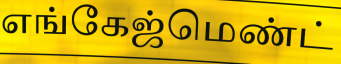
எங்கேஜ்மெண்ட்